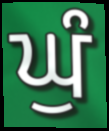
ਘੁੰ